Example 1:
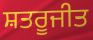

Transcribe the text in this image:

ਸ਼ਤਰੂਜੀਤ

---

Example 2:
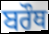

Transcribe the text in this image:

ਬਰੌਥ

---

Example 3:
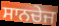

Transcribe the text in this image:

ਸਾਨਚੇਜ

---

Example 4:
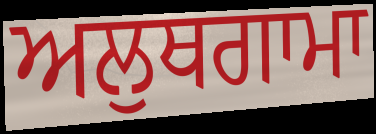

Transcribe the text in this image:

ਅਲੁਥਗਾਮਾ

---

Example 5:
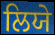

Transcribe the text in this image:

ਲਿਯੇ